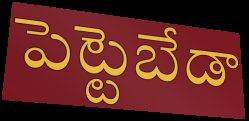
పెట్టెబేడా